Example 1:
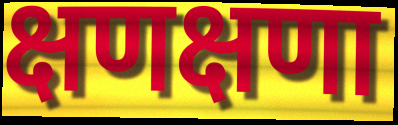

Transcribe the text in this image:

क्षणक्षणा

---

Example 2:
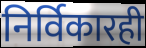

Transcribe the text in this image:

निर्विकारही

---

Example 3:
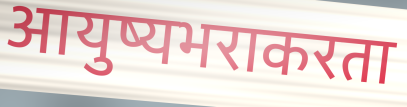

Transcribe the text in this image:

आयुष्यभराकरता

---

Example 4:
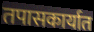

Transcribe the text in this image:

तपासकार्यात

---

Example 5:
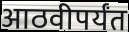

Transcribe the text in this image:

आठवीपर्यंत